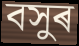
বসুৰ